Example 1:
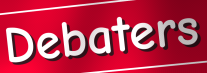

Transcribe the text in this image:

Debaters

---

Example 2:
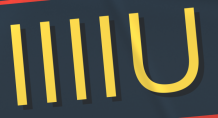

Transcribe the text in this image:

IIIIU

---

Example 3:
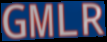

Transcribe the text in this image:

GMLR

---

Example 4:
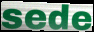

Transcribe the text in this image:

sede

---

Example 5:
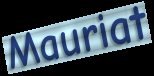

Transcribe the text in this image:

Mauriat